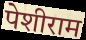
पेशीराम